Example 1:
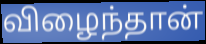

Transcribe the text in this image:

விழைந்தான்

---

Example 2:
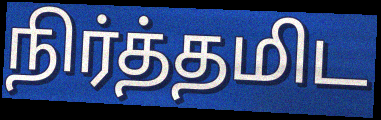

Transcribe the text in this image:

நிர்த்தமிட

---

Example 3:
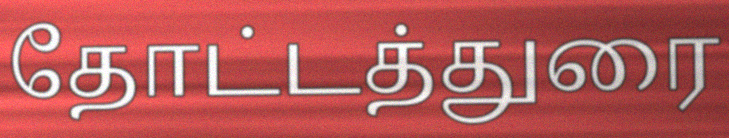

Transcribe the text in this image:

தோட்டத்துரை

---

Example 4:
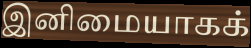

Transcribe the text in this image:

இனிமையாகக்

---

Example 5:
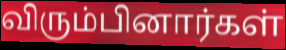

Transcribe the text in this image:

விரும்பினார்கள்